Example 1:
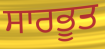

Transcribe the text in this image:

ਸਾਰਭੂਤ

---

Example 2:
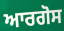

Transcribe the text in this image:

ਆਰਗੋਸ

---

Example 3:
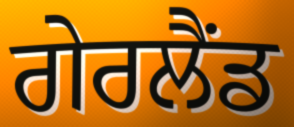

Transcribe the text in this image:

ਗੇਰਲੈਂਡ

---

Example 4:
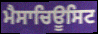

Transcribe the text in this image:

ਮੈਸਾਚਿਊਸਿਟ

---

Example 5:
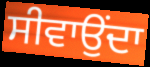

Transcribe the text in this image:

ਸੀਵਾਉਂਦਾ